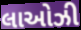
લાઓઝી